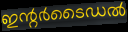
ഇന്റർടൈഡൽ